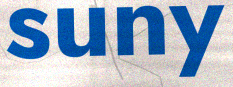
suny